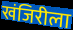
खंजिरीला